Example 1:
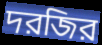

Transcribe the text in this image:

দরজির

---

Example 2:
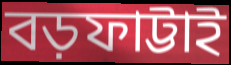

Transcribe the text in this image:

বড়ফাট্টাই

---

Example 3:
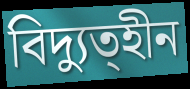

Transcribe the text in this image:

বিদ্যুত্হীন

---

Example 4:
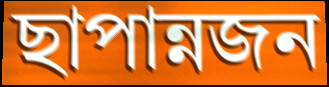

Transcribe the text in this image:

ছাপান্নজন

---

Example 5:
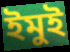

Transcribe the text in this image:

ইমুই